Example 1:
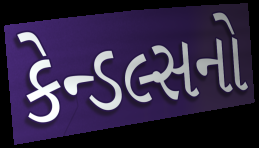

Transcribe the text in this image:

કેન્ડલ્સનો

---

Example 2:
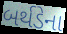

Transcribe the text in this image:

બર્થડેના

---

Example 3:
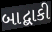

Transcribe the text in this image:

બાદ્બાકી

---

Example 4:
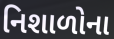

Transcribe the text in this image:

નિશાળોના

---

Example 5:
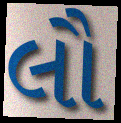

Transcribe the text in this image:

લૌ